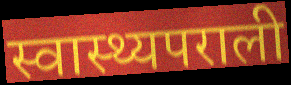
स्वास्थ्यपराली